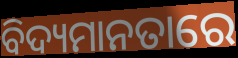
ବିଦ୍ୟମାନତାରେ